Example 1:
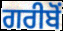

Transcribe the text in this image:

ਗਰੀਬੋਂ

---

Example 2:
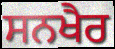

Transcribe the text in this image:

ਸਨਖੈਰ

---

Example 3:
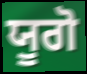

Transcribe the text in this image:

ਯੂਗੋ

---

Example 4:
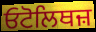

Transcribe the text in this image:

ਓਟੋਲਿਥਜ਼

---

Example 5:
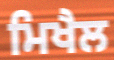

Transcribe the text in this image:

ਮਿਖੈਲ